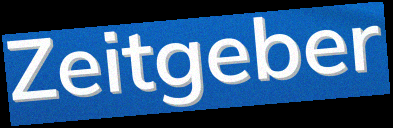
Zeitgeber